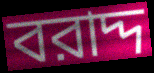
বরাদ্দ